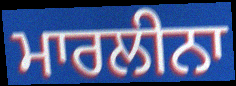
ਮਾਰਲੀਨਾ